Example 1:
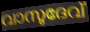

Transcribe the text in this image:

വാസുദേവ്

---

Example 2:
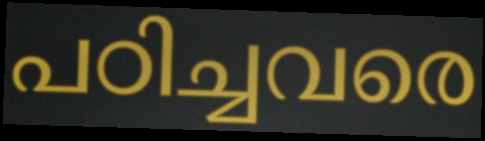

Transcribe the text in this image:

പഠിച്ചവരെ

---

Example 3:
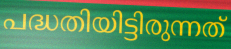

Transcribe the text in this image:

പദ്ധതിയിട്ടിരുന്നത്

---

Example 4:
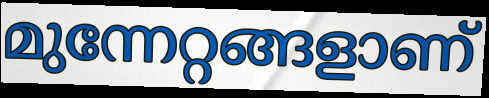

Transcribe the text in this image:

മുന്നേറ്റങ്ങളാണ്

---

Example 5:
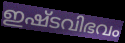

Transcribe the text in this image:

ഇഷ്ടവിഭവം